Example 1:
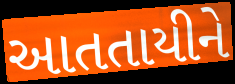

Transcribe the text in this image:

આતતાયીને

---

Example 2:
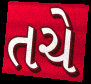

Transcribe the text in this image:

તચે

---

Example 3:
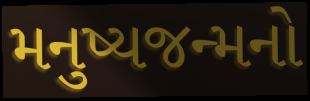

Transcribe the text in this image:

મનુષ્યજન્મનો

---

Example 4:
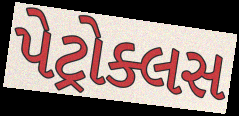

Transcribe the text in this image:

પેટ્રોક્લસ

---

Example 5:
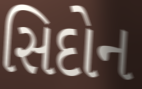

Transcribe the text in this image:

સિદોન